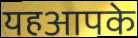
यहआपके